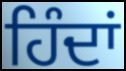
ਹਿੰਦਾਂ